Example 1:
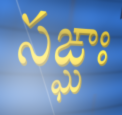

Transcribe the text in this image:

సఙ్ఘాః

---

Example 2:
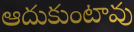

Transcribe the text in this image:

ఆదుకుంటావు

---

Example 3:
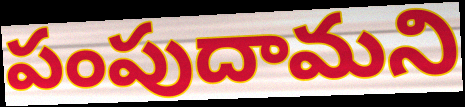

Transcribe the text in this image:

పంపుదామని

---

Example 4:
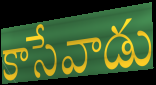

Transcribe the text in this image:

కాసేవాడు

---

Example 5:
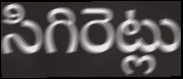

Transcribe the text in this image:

సిగిరెట్లు